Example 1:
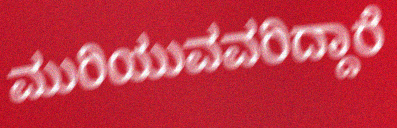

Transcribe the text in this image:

ಮುರಿಯುವವರಿದ್ದಾರೆ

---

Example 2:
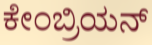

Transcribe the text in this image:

ಕೇಂಬ್ರಿಯನ್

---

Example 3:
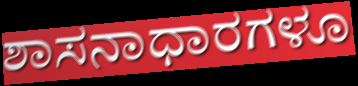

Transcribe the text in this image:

ಶಾಸನಾಧಾರಗಳೂ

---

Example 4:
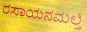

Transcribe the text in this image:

ರಸಾಯನಮಲ್ತೆ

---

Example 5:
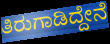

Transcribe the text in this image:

ತಿರುಗಾಡಿದ್ದೇನೆ